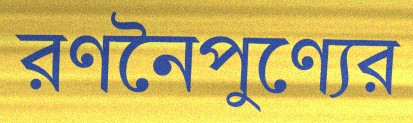
রণনৈপুণ্যের